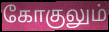
கோகுலும்